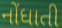
નોંધાતી